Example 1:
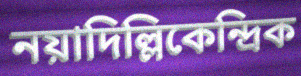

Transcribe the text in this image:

নয়াদিল্লিকেন্দ্রিক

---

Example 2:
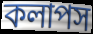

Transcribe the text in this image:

কলাপস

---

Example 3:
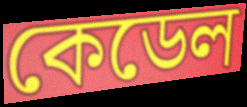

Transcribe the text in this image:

কেডেল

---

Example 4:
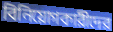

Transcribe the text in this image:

বিনিয়োগকারীদের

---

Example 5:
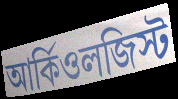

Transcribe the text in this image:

আর্কিওলজিস্ট